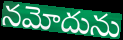
నమోదును